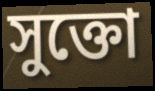
সুক্তো